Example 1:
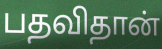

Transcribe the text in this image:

பதவிதான்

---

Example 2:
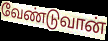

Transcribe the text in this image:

வேண்டுவான்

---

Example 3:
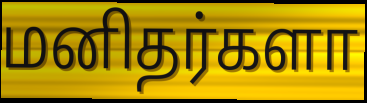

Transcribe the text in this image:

மனிதர்களா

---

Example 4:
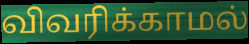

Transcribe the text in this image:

விவரிக்காமல்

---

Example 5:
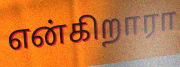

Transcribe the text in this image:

என்கிறாரா